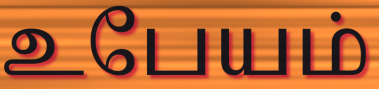
உபேயம்